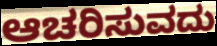
ಆಚರಿಸುವದು